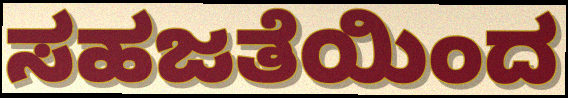
ಸಹಜತೆಯಿಂದ